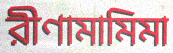
রীণামামিমা